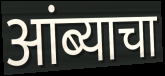
आंब्याचा